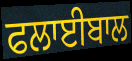
ਫਲਾਈਬਾਲ